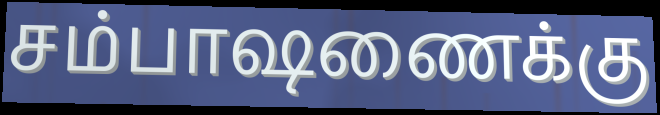
சம்பாஷணைக்கு